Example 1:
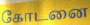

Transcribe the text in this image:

கோடனை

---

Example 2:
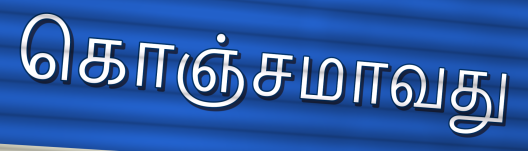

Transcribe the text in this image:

கொஞ்சமாவது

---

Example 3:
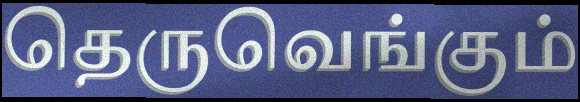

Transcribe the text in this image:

தெருவெங்கும்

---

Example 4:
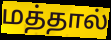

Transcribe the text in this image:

மத்தால்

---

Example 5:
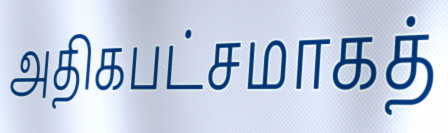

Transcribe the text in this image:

அதிகபட்சமாகத்